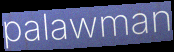
palawman